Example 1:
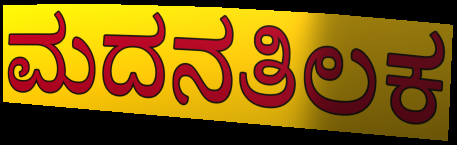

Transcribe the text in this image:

ಮದನತಿಲಕ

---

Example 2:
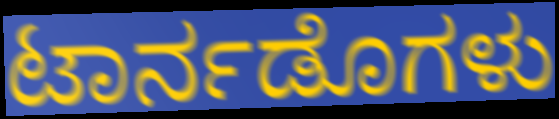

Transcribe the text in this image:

ಟಾರ್ನಡೊಗಳು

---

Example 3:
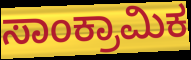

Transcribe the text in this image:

ಸಾಂಕ್ರಾಮಿಕ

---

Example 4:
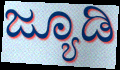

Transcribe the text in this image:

ಜ್ಯೂಡಿ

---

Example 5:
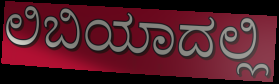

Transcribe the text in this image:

ಲಿಬಿಯಾದಲ್ಲಿ